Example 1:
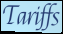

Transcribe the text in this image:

Tariffs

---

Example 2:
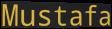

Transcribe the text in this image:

Mustafa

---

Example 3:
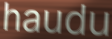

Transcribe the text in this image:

haudu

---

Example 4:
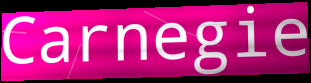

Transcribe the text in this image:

Carnegie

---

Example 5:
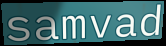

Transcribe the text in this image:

samvad